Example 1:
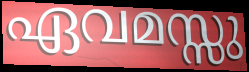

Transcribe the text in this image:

ഏവമസ്സു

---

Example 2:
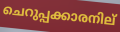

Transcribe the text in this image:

ചെറുപ്പക്കാരനില്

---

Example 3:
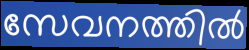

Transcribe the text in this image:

സേവനത്തിൽ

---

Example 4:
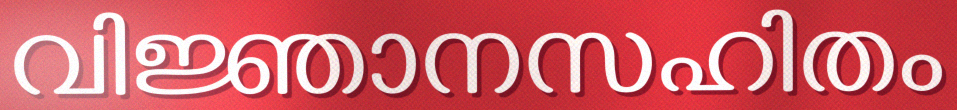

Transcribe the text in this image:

വിജ്ഞാനസഹിതം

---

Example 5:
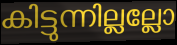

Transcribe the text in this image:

കിട്ടുന്നില്ലല്ലോ